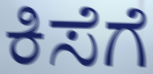
ಕಿಸೆಗೆ